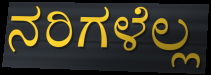
ನರಿಗಳೆಲ್ಲ